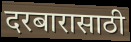
दरबारासाठी